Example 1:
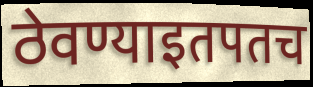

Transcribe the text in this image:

ठेवण्याइतपतच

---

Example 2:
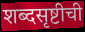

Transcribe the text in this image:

शब्दसृष्टीची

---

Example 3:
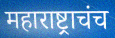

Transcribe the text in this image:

महाराष्ट्राचंच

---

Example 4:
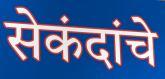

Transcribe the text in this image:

सेकंदांचे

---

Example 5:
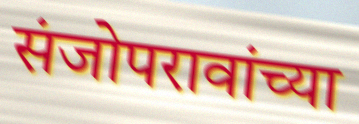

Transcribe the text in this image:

संजोपरावांच्या